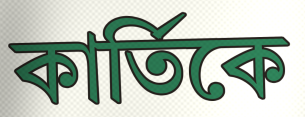
কাৰ্তিকে